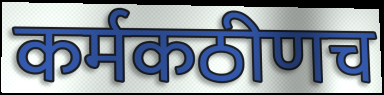
कर्मकठीणच